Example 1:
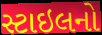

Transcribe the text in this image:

સ્ટાઇલનો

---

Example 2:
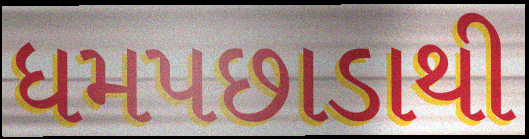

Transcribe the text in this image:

ધમપછાડાથી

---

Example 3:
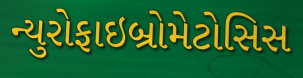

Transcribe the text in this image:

ન્યુરોફાઇબ્રોમેટોસિસ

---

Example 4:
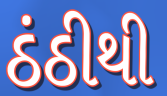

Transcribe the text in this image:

ઠંઠીથી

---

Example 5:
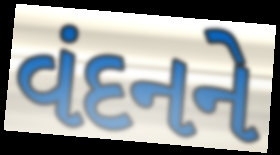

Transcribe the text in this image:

વંદનને